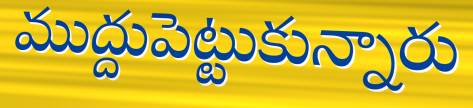
ముద్దుపెట్టుకున్నారు